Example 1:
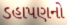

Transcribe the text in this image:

ડહાપણનો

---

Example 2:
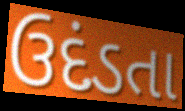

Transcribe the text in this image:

ઉદંડતા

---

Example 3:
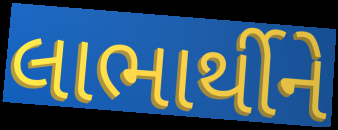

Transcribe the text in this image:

લાભાર્થીને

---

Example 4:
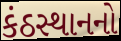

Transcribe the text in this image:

કંઠસ્થાનનો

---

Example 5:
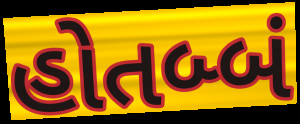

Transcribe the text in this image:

હોતબ્બં